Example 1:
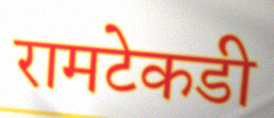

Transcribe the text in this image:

रामटेकडी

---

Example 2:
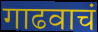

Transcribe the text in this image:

गाढवाचं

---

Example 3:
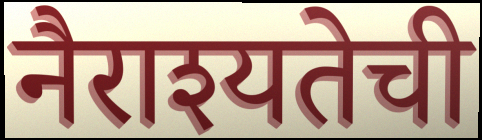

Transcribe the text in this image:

नैराश्यतेची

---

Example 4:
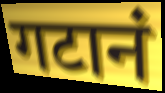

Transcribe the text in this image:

गटानं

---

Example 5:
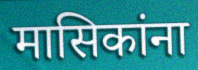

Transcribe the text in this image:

मासिकांना